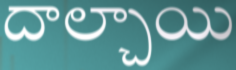
దాల్చాయి